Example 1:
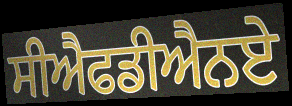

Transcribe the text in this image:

ਸੀਐਫਡੀਐਨਏ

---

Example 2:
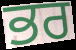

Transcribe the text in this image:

ਭਰ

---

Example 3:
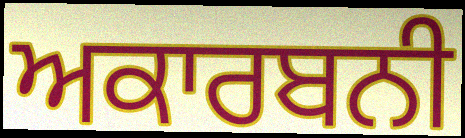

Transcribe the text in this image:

ਅਕਾਰਬਨੀ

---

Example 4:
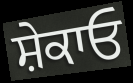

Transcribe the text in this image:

ਸ਼ੇਕਾਓ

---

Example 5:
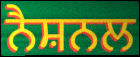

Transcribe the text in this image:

ਨੈਸ਼ਨਲ